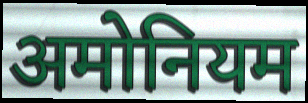
अमोनियम